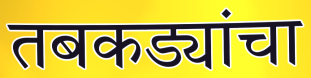
तबकड्यांचा